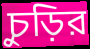
চুড়ির